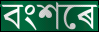
বংশৰে